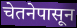
चेतनेपासून